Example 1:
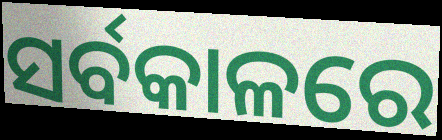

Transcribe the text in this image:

ସର୍ବକାଳରେ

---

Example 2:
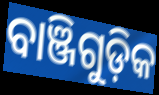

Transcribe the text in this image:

ବାଞ୍ଜିଗୁଡ଼ିକ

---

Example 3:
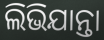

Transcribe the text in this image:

ଲିଭିଯାନ୍ତା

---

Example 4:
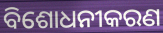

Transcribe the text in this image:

ବିଶୋଧନୀକରଣ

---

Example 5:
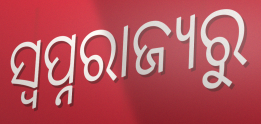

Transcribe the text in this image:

ସ୍ୱପ୍ନରାଜ୍ୟରୁ